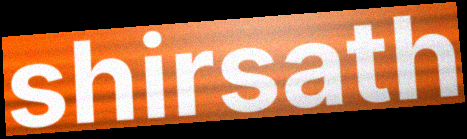
shirsath